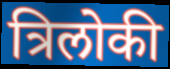
त्रिलोकी